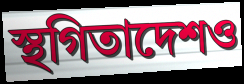
স্থগিতাদেশও